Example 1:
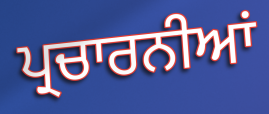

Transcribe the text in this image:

ਪ੍ਰਚਾਰਨੀਆਂ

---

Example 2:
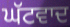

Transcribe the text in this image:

ਘੱਟਵਾਦ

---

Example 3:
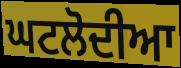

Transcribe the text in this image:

ਘਟਲੋਦੀਆ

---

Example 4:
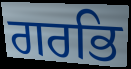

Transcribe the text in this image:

ਗਰਭਿ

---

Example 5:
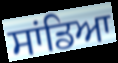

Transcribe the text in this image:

ਸਾਂਡਿਆ